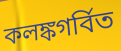
কলঙ্কগর্বিত